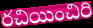
రచియించిరి